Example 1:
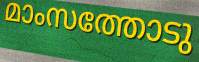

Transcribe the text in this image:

മാംസത്തോടു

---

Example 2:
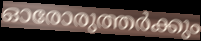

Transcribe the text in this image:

ഓരോരുത്തർക്കും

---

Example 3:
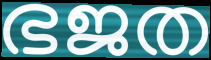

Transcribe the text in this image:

ഭജത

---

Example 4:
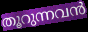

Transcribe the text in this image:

തൂറുന്നവൻ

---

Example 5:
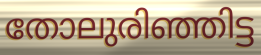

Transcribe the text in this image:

തോലുരിഞ്ഞിട്ട